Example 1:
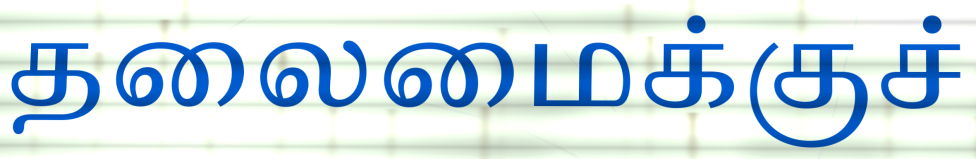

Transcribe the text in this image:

தலைமைக்குச்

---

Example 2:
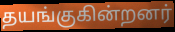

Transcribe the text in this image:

தயங்குகின்றனர்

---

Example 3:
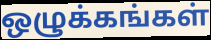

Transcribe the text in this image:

ஒழுக்கங்கள்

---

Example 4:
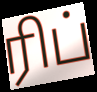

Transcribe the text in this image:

ரிப்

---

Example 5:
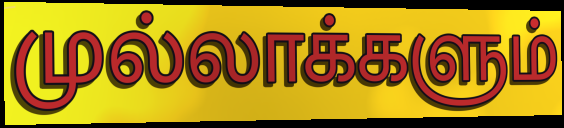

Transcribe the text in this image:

முல்லாக்களும்